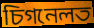
চিগনেলত